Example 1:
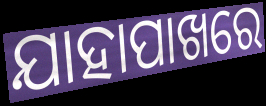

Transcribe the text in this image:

ଯାହାପାଖରେ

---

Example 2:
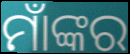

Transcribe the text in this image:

ମାଁଙ୍କର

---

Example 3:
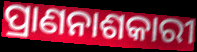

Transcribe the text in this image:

ପ୍ରାଣନାଶକାରୀ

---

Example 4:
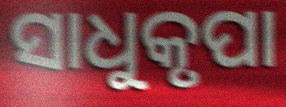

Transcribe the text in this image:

ସାଧୁକୃପା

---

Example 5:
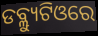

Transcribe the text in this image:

ଡବ୍ଲ୍ୟୁଟିଓରେ